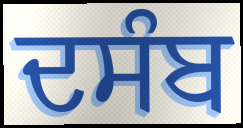
ਦਸੰਬ